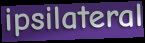
ipsilateral